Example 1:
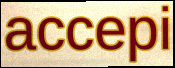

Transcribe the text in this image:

accepi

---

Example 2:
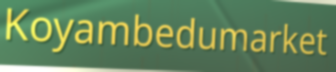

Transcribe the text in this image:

Koyambedumarket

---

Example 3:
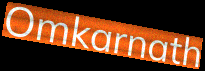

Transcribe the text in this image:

Omkarnath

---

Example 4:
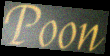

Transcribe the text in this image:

Poon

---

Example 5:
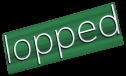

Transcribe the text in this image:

lopped